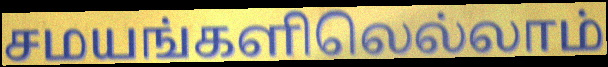
சமயங்களிலெல்லாம்